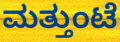
ಮತ್ತುಂಟೆ